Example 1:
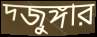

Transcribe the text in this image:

দ্জুঙ্গার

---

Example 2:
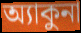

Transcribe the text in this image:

অ্যাকুনা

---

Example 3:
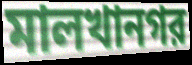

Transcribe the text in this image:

মালখানগর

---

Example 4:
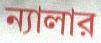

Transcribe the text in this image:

ন্যালার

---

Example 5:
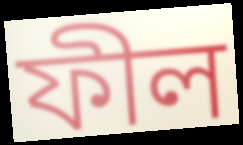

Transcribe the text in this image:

ফীল